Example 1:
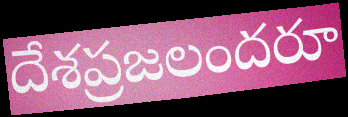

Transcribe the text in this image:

దేశప్రజలందరూ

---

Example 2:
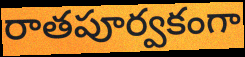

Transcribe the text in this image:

రాతపూర్వకంగా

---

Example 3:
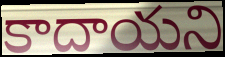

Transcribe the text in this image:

కాదాయని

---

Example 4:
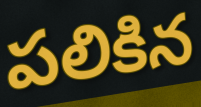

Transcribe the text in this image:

పలికిన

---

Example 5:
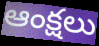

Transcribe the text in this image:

ఆంక్షలు